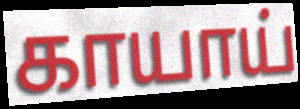
காயாய்